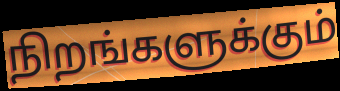
நிறங்களுக்கும்